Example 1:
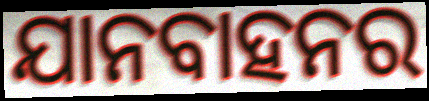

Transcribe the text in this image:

ଯାନବାହନର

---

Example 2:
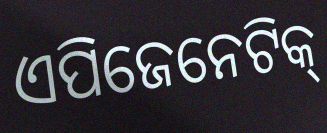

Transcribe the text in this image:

ଏପିଜେନେଟିକ୍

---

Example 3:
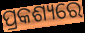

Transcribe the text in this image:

ପ୍ରକଶ୍ୟରେ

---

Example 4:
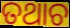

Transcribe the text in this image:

ତଥାଚ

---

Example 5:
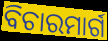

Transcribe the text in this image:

ବିଚାରମାର୍ଗ